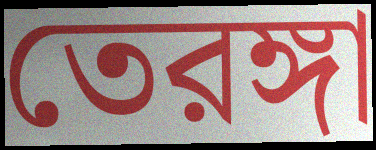
তেরঙ্গা